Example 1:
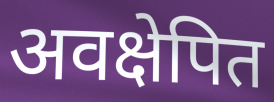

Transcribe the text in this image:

अवक्षेपित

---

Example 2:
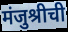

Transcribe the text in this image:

मंजुश्रीची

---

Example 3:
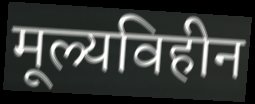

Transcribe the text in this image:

मूल्यविहीन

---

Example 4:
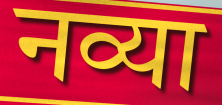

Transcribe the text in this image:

नव्‍या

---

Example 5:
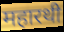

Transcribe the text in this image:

महारथी